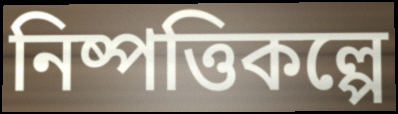
নিষ্পত্তিকল্পে